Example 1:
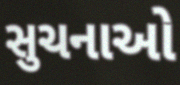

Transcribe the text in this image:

સુચનાઓ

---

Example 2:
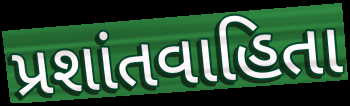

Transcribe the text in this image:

પ્રશાંતવાહિતા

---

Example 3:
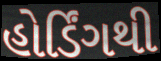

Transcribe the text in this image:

હોર્ડિંગથી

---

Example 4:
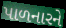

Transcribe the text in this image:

પાળનારને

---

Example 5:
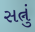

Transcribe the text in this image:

સત્નું